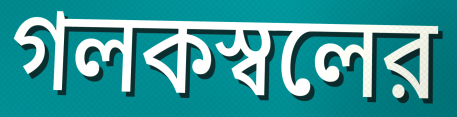
গলকস্বলের